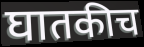
घातकीच